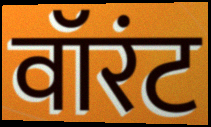
वॉरंट